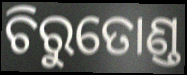
ଚିରୁତୋଣ୍ଡ